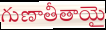
గుణాతీతాయై